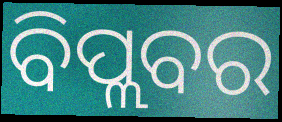
ବିପ୍ଲବର